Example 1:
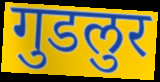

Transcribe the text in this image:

गुडलुर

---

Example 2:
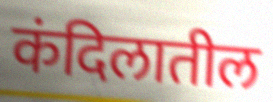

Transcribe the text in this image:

कंदिलातील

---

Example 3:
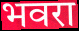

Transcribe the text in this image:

भवरा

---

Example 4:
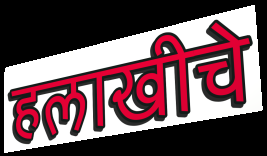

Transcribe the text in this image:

हलाखीचे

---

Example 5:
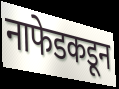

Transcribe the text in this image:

नाफेडकडून